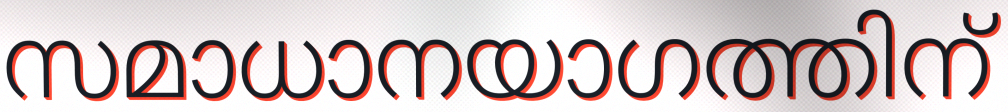
സമാധാനയാഗത്തിന്